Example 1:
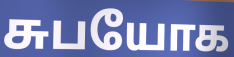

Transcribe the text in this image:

சுபயோக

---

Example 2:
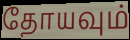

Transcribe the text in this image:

தோயவும்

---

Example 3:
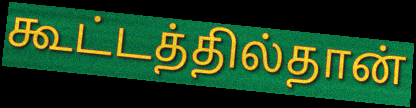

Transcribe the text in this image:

கூட்டத்தில்தான்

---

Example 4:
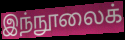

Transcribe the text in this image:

இந்நூலைக்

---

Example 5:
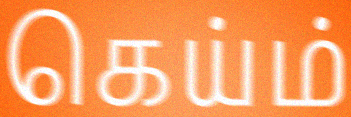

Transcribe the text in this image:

கெய்ம்